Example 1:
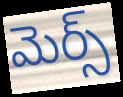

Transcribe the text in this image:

మెర్స్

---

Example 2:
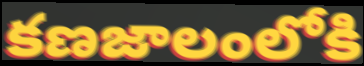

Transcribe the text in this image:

కణజాలంలోకి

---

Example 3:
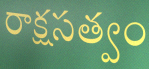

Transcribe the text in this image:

రాక్షసత్వం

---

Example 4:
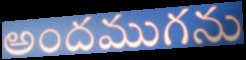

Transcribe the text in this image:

అందముగను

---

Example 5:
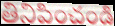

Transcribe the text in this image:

తినిపించండి